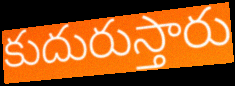
కుదురుస్తారు